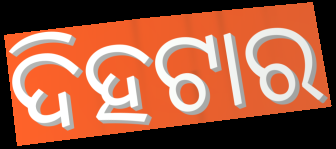
ଦିହଟାର